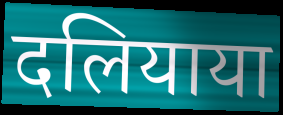
दलियाया